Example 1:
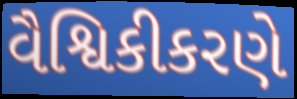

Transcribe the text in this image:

વૈશ્વિકીકરણે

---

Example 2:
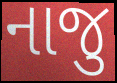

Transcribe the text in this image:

નાજુ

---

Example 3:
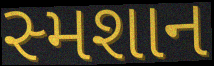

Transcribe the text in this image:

સ્મશાન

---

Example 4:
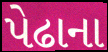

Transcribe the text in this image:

પેઢાના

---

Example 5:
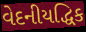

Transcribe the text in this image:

વેદનીયદ્ધિક